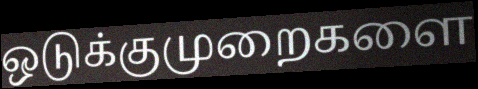
ஒடுக்குமுறைகளை